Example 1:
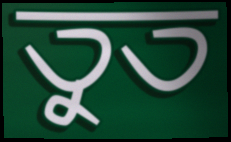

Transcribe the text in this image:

তুত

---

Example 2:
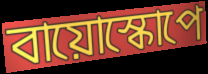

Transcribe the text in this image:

বায়োস্কোপে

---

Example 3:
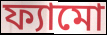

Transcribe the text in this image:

ফ্যামো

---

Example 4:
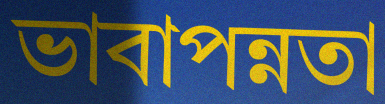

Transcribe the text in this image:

ভাবাপন্নতা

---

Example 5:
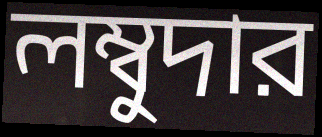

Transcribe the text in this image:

লম্বুদার